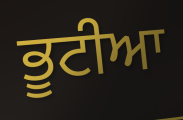
ਭੂਟੀਆ